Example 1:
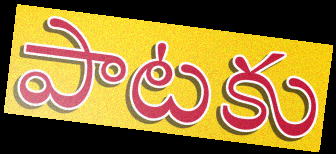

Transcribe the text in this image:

పాటకు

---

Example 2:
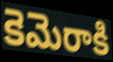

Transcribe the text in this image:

కెమెరాకి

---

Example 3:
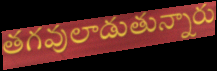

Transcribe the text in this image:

తగవులాడుతున్నారు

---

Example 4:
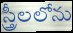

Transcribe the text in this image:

స్త్రీలలోను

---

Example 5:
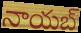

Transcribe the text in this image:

నాయబ్